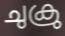
ചുക്രു